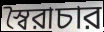
স্বৈরাচার